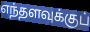
எந்தளவுக்குப்